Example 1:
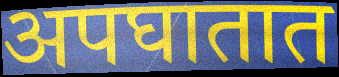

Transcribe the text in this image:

अपघातात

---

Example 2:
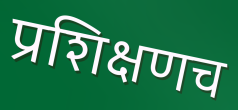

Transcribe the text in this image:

प्रशिक्षणच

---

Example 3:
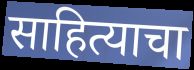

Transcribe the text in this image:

साहित्याचा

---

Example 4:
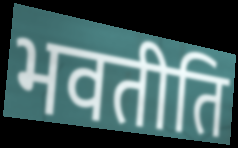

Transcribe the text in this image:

भवतीति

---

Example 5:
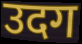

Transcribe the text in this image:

उदग